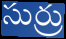
సుర్రు